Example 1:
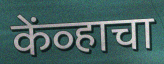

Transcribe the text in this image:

केंव्हाचा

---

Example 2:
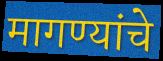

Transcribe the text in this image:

मागण्यांचे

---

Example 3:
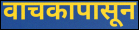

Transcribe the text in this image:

वाचकापासून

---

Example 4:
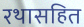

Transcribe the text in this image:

रथासहित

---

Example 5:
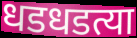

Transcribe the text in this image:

धडधडत्या